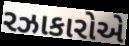
રઝાકારોએ